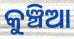
କୁଞ୍ଚିଆ